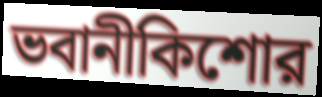
ভবানীকিশোর